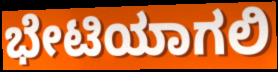
ಭೇಟಿಯಾಗಲಿ